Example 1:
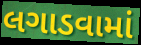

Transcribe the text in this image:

લગાડવામાં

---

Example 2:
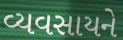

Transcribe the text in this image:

વ્યવસાયને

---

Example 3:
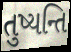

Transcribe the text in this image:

તુષ્યન્તિ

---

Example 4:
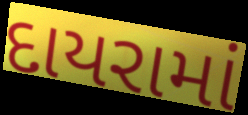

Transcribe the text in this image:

દાયરામાં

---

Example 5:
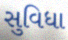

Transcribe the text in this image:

સુવિધા